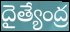
దైత్యేంద్ర